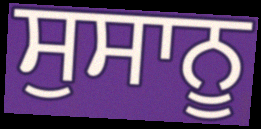
ਸੁਸਾਨੂ